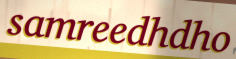
samreedhdho